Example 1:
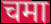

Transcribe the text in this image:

चमा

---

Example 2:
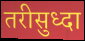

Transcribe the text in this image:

तरीसुध्दा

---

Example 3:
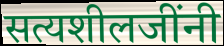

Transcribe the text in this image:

सत्यशीलजींनी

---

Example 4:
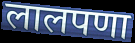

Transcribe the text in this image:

लालपणा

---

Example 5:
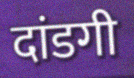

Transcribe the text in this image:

दांडगी